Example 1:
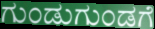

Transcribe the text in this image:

ಗುಂಡುಗುಂಡಗೆ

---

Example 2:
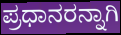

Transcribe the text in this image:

ಪ್ರಧಾನರನ್ನಾಗಿ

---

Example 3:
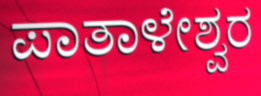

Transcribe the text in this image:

ಪಾತಾಳೇಶ್ವರ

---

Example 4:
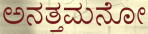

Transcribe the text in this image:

ಅನತ್ತಮನೋ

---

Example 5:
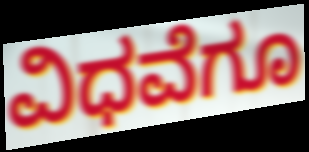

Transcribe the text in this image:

ವಿಧವೆಗೂ